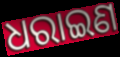
ଧରାଇଣ